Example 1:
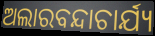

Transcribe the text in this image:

ଅଲାରବନ୍ଦାଚାର୍ଯ୍ୟ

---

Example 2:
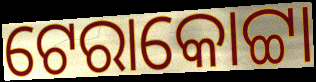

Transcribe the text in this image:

ଟେରାକୋଟ୍ଟା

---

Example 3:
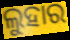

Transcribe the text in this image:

ଲୁହାର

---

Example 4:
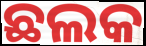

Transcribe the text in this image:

ଛଲକ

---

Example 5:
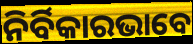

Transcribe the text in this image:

ନିର୍ବିକାରଭାବେ